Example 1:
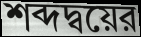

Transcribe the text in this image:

শব্দদ্বয়ের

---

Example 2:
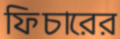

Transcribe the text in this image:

ফিচারের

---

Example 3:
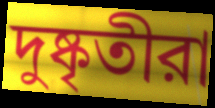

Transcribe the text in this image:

দুষ্কৃতীরা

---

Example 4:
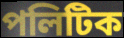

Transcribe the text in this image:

পলিটিক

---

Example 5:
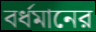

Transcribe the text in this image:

বর্ধমানের